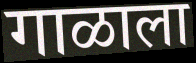
गाळाला